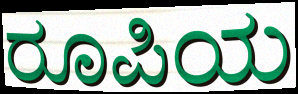
ರೂಪಿಯ